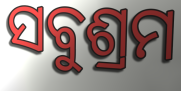
ସବୁଶ୍ରମ